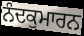
ਨੰਦਕੁਮਾਰਨ